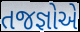
તજજ્ઞોએ